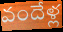
వందేళ్ల